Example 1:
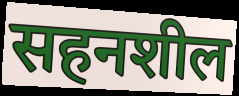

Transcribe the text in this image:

सहनशील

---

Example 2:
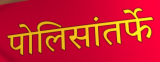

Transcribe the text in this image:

पोलिसांतर्फे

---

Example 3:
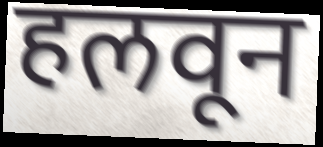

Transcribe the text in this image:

हलवून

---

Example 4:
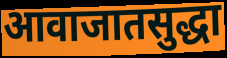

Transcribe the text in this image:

आवाजातसुद्धा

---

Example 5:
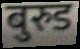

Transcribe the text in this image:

बुरुड